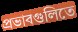
প্রভাবগুলিতে